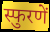
स्फुरणें